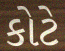
કોટે